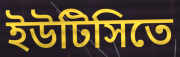
ইউটিসিতে